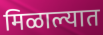
मिळाल्यात